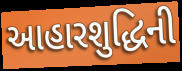
આહારશુદ્ધિની